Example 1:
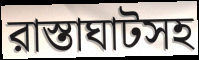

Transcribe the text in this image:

রাস্তাঘাটসহ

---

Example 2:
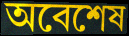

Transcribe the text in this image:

অবেশেষ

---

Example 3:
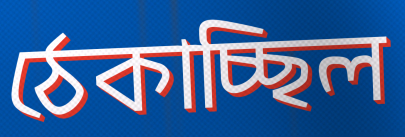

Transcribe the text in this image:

ঠেকাচ্ছিল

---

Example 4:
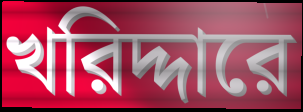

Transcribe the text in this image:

খরিদ্দারে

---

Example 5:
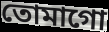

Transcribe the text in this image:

তোমাগো